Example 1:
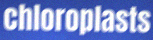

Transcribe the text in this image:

chloroplasts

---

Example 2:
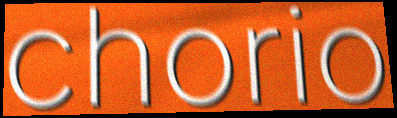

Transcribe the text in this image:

chorio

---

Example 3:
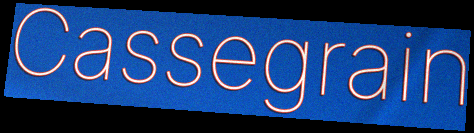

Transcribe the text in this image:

Cassegrain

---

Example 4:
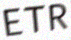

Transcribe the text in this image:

ETR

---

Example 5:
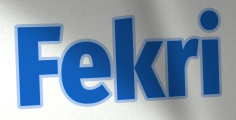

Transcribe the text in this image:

Fekri